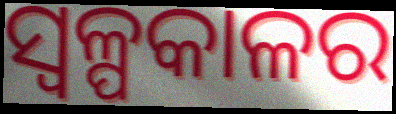
ସ୍ୱଳ୍ପକାଳର